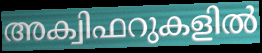
അക്വിഫറുകളിൽ